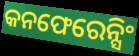
କନଫେରେନ୍ସିଂ